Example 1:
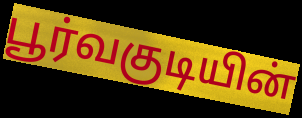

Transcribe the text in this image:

பூர்வகுடியின்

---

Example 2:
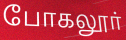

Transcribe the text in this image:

போகலூர்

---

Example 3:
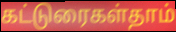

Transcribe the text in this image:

கட்டுரைகள்தாம்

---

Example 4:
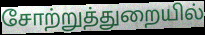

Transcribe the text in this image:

சோற்றுத்துறையில்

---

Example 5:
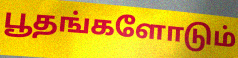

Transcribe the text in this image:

பூதங்களோடும்